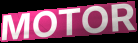
MOTOR